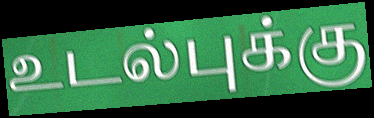
உடல்புக்கு